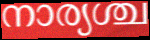
നാര്യശ്ച